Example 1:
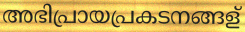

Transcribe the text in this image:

അഭിപ്രായപ്രകടനങ്ങള്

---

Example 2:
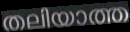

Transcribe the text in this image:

തലിയാത്ത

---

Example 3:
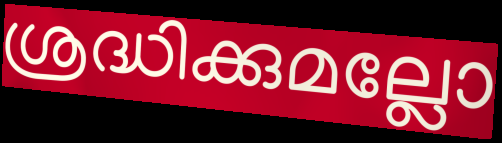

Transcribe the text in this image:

ശ്രദ്ധിക്കുമല്ലോ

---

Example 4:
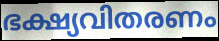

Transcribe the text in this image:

ഭക്ഷ്യവിതരണം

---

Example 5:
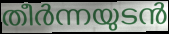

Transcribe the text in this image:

തീർന്നയുടൻ